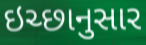
ઇચ્છાનુસાર